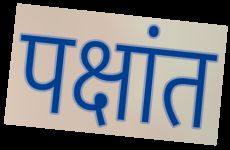
पक्षांत